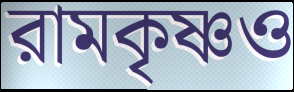
রামকৃষ্ণও